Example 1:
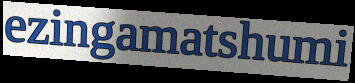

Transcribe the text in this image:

ezingamatshumi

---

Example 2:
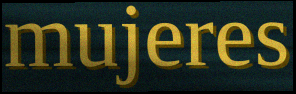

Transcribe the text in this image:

mujeres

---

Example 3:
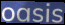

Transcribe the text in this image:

oasis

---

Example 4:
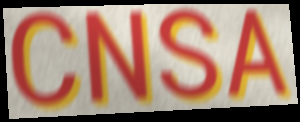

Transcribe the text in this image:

CNSA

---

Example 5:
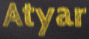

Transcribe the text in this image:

Atyar